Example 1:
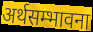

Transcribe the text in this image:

अर्थसम्भावना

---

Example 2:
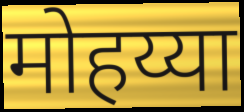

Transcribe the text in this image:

मोहय्या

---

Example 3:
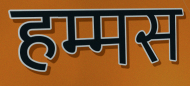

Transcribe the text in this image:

हम्मस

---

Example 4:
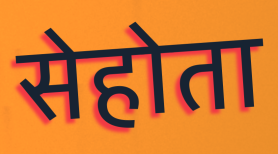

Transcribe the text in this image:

सेहोता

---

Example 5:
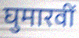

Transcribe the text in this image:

घुमारवीं